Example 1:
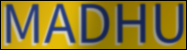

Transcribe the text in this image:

MADHU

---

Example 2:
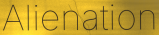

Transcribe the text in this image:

Alienation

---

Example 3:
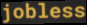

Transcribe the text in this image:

jobless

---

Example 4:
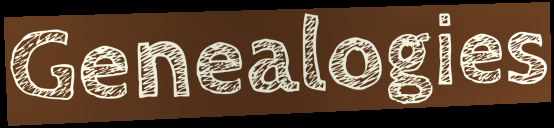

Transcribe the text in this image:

Genealogies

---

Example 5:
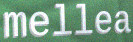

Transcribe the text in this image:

mellea